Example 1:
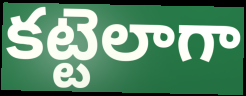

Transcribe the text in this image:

కట్టెలాగా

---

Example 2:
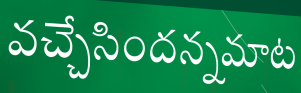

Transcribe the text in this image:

వచ్చేసిందన్నమాట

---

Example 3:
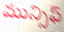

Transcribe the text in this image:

మున్సిఫ్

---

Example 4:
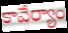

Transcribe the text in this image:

కావేర్యాం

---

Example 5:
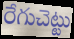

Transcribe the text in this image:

రేగుచెట్టు